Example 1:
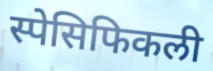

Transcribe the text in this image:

स्पेसिफिकली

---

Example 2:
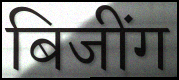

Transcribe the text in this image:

बिजींग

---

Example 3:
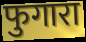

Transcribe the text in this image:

फुगारा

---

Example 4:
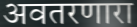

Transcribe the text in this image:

अवतरणारा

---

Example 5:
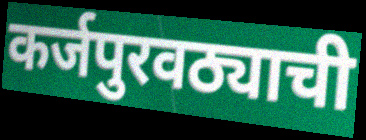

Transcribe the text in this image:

कर्जपुरवठ्याची